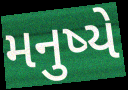
મનુષ્યે